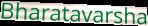
Bharatavarsha